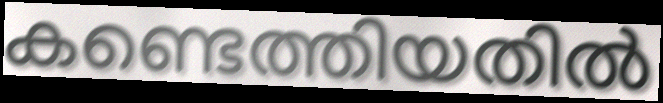
കണ്ടെത്തിയതിൽ